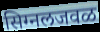
सिग्नलजवळ